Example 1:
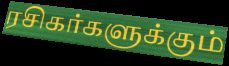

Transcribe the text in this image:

ரசிகர்களுக்கும்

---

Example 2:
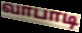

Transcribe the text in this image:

வாபாடி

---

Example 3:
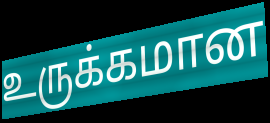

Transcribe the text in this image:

உருக்கமான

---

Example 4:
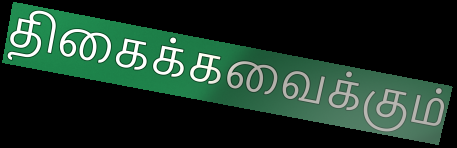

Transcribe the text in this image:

திகைக்கவைக்கும்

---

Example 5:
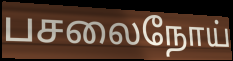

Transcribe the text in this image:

பசலைநோய்